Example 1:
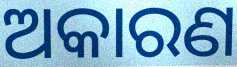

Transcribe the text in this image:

ଅକାରଣ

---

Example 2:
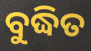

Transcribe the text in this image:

ବୁଦ୍ଧିତ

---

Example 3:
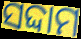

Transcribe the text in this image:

ସଦ୍ଦାମ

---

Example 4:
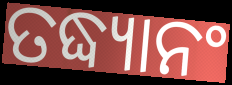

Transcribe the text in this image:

ତଦ୍ଧ୍ଯାନଂ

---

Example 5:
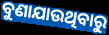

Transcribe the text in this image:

ବୁଣାଯାଉଥିବାରୁ